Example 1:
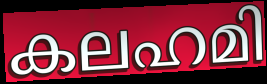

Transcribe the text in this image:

കലഹമി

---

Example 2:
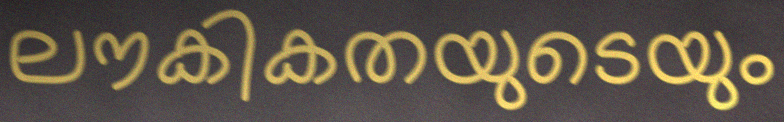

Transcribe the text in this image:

ലൗകികതയുടെയും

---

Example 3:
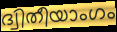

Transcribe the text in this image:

ദ്വിതീയാംഗം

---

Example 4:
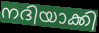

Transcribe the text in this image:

നദിയാക്കി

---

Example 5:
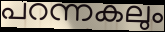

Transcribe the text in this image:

പറന്നകലും